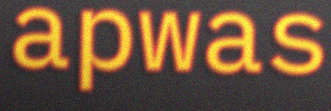
apwas